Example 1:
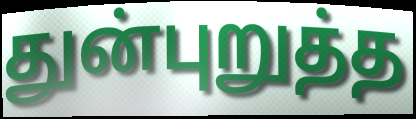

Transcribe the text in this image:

துன்புறுத்த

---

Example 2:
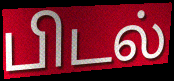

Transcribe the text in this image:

பிடல்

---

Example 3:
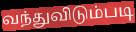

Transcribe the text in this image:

வந்துவிடும்படி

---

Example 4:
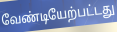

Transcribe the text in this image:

வேண்டியேற்பட்டது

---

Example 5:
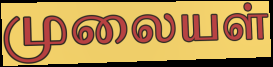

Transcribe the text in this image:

முலையள்